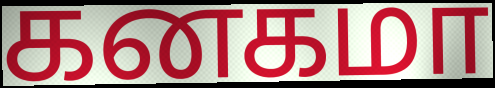
கனகமா